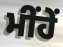
ਮੀਂਹੇਂ